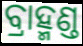
ବ୍ରାହ୍ମଣ୍ଡ